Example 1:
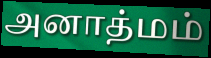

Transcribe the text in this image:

அனாத்மம்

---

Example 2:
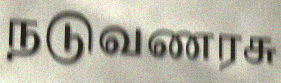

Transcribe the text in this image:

நடுவணரசு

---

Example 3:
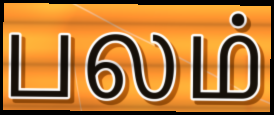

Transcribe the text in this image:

பலம்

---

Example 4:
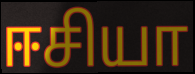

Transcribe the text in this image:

ஈசியா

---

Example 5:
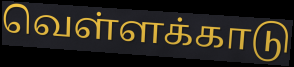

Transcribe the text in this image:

வெள்ளக்காடு